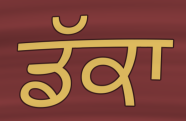
ਡੱਕਾ